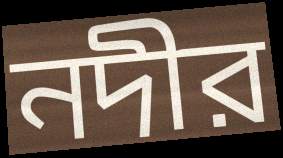
নদীর